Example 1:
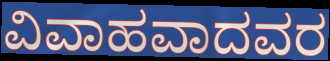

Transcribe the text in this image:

ವಿವಾಹವಾದವರ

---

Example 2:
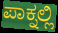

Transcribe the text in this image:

ಪಾಕ್ನಲ್ಲಿ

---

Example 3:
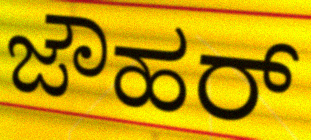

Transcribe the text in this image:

ಜೌಹರ್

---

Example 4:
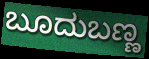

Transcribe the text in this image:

ಬೂದುಬಣ್ಣ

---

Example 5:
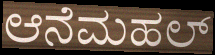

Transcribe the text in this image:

ಆನೆಮಹಲ್